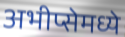
अभीप्सेमध्ये